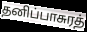
தனிப்பாசுரத்